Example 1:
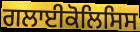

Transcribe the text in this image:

ਗਲਾਈਕੋਲਿਸਿਸ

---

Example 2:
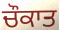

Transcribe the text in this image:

ਚੌਕਾਤ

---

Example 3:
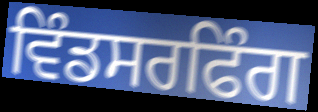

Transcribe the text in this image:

ਵਿੰਡਸਰਫਿੰਗ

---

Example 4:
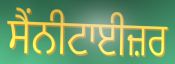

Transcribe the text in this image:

ਸੈਂਨੀਟਾਈਜ਼ਰ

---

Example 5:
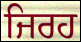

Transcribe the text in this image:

ਜਿਰਹ